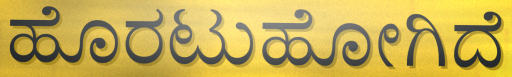
ಹೊರಟುಹೋಗಿದೆ